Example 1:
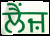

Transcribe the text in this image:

ਲੈਂਜ਼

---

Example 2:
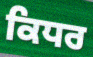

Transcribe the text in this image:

ਕਿਧਰ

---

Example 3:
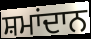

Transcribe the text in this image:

ਸ਼ਮਾਂਦਾਨ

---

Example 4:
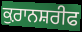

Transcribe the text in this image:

ਕ਼ੁਰਾਨਸ਼ਰੀਫ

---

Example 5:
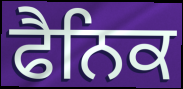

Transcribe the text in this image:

ਫੈਨਿਕ